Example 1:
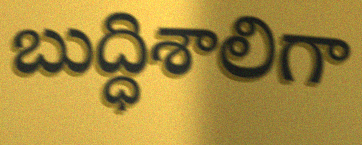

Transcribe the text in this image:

బుద్ధిశాలిగా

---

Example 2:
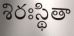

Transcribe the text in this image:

శిరఃస్థితా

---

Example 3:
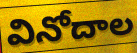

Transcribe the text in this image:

వినోదాల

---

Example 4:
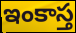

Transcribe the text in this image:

ఇంకాస్త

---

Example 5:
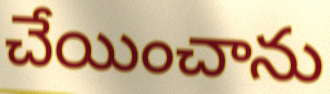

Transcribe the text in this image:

చేయించాను